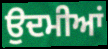
ਉਦਮੀਆਂ